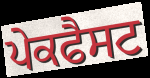
ਪੇਕਫੈਸਟ